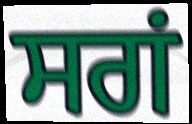
ਸਗਂ